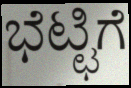
ಭೆಟ್ಟಿಗೆ